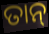
ତାନ୍